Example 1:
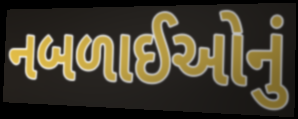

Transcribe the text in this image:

નબળાઈઓનું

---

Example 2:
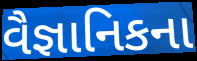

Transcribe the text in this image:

વૈજ્ઞાનિકના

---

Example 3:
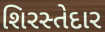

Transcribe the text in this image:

શિરસ્તેદાર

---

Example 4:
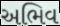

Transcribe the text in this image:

અભિવ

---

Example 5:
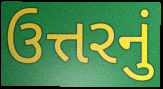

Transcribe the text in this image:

ઉત્તરનું